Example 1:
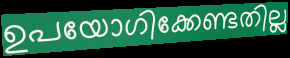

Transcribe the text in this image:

ഉപയോഗിക്കേണ്ടതില്ല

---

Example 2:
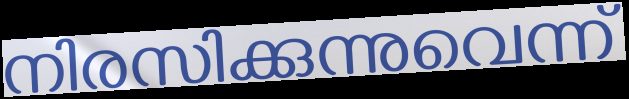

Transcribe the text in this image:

നിരസിക്കുന്നുവെന്ന്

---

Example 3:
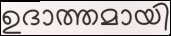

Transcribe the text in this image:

ഉദാത്തമായി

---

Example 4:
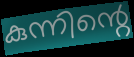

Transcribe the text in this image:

കുന്നിന്റെ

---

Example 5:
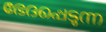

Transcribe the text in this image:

ഭേദപ്പെടുന്ന